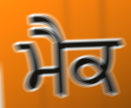
ਮੈਕ